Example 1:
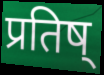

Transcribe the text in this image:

प्रतिष्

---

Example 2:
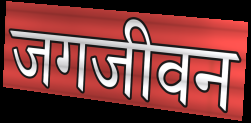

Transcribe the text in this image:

जगजीवन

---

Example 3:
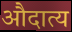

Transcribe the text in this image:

औदात्य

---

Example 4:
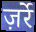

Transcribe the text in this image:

ज़र्रे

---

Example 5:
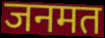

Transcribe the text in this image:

जनमत